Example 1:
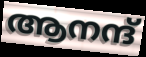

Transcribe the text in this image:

ആനന്ദ്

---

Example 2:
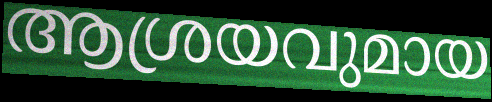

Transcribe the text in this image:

ആശ്രയവുമായ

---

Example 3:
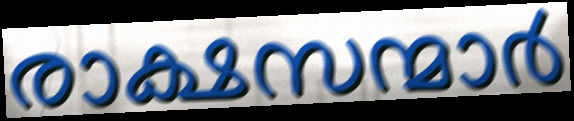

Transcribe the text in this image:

രാക്ഷസന്മാർ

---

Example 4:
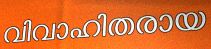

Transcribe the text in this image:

വിവാഹിതരായ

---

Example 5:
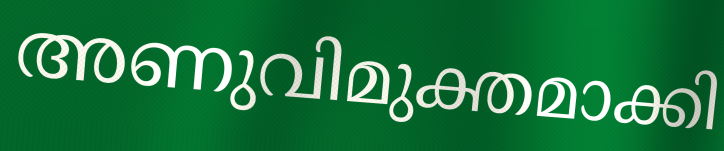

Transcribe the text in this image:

അണുവിമുക്തമാക്കി